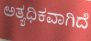
ಅತ್ಯಧಿಕವಾಗಿದೆ